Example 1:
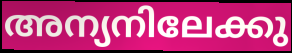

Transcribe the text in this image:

അന്യനിലേക്കു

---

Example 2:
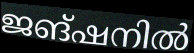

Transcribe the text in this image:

ജങ്ഷനിൽ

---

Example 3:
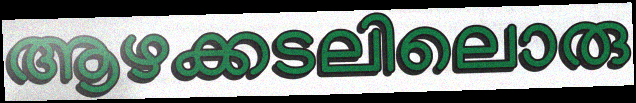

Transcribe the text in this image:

ആഴക്കടലിലൊരു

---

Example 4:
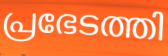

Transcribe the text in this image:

പ്രഭേടത്തി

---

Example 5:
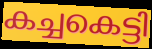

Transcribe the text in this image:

കച്ചകെട്ടി